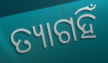
ତ୍ୟାଗହିଁ